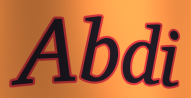
Abdi